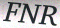
FNR